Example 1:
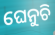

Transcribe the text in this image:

ଘେନୁଚି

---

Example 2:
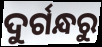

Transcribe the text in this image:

ଦୁର୍ଗନ୍ଧରୁ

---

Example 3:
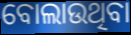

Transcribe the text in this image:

ବୋଲାଉଥିବା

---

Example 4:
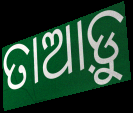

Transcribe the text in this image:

ତାଆଡ଼ୁ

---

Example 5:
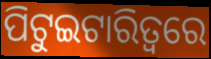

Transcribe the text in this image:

ପିଟୁଇଟାରିତ୍ୱରେ